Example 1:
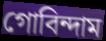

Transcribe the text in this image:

গোবিন্দাম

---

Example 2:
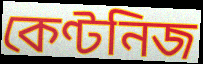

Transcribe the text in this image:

কেণ্টনিজ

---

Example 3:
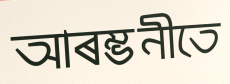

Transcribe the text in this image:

আৰম্ভনীতে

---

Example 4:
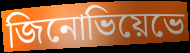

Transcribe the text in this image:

জিনোভিয়েভে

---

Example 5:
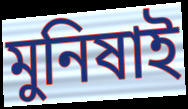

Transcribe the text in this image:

মুনিষাই